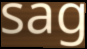
sag